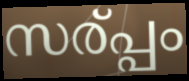
സര്പ്പം